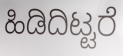
ಹಿಡಿದಿಟ್ಟರೆ